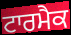
ਟਾਰਮੈਕ